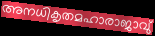
അനധികൃതമഹാരാജാവു്